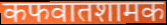
कफवातशामक